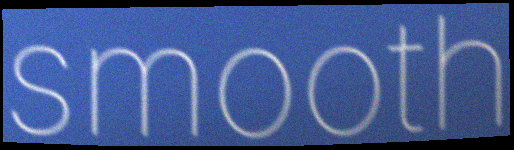
smooth